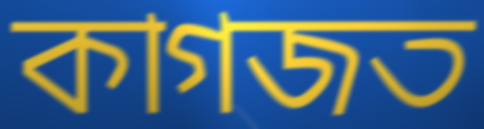
কাগজত